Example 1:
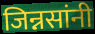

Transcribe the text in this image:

जिन्नसांनी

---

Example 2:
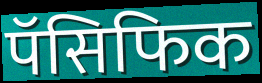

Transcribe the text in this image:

पॅसिफिक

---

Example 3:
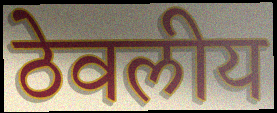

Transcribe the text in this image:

ठेवलीय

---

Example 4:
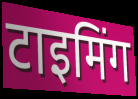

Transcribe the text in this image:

टाइमिंग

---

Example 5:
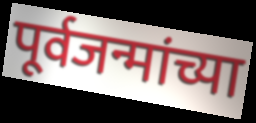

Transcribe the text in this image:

पूर्वजन्मांच्या